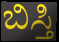
ಬಿಸ್ತಿ